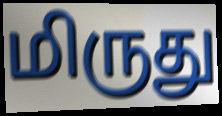
மிருது